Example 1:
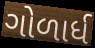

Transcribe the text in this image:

ગોળાર્ધ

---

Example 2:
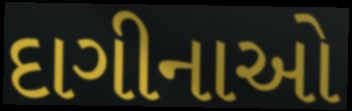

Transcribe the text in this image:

દાગીનાઓ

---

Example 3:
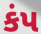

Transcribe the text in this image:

કંપ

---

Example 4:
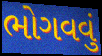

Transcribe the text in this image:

ભોગવવું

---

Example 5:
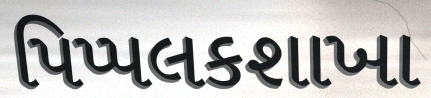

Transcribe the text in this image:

પિપ્પલકશાખા